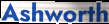
Ashworth